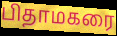
பிதாமகரை